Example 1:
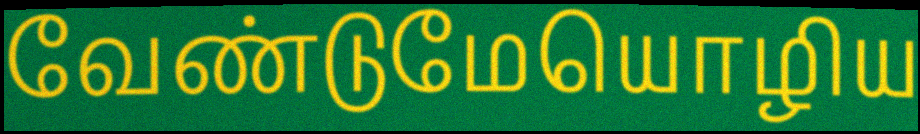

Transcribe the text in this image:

வேண்டுமேயொழிய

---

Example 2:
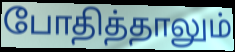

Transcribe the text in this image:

போதித்தாலும்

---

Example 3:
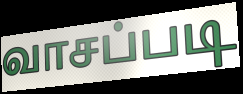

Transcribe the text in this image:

வாசப்படி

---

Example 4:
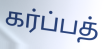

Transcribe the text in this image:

கர்ப்பத்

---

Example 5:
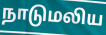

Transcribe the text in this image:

நாடுமலிய